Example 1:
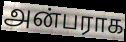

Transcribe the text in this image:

அன்பராக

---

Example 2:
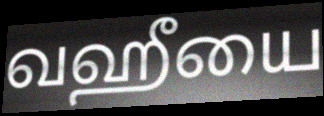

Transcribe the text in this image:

வஹீயை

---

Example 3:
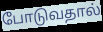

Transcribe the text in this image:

போடுவதால்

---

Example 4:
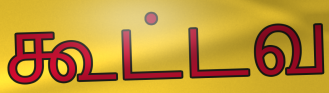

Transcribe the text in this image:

கூட்டவ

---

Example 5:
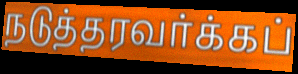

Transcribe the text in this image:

நடுத்தரவர்க்கப்